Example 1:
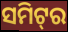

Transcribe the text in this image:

ସମିଟ୍‌ର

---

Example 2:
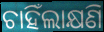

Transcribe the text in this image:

ଚାହିଁଲାକ୍ଷଣି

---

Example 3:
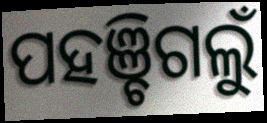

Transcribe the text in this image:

ପହଞ୍ଚିଗଲୁଁ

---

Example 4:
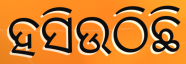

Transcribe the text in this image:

ହସିଉଠିଛି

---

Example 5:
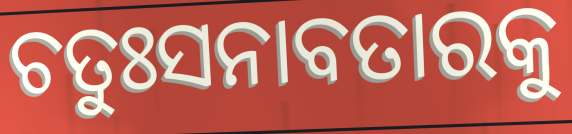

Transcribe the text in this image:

ଚତୁଃସନାବତାରକୁ